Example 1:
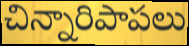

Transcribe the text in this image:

చిన్నారిపాపలు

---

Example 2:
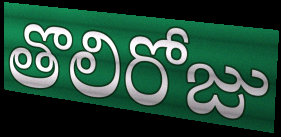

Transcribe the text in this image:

తొలిరోజు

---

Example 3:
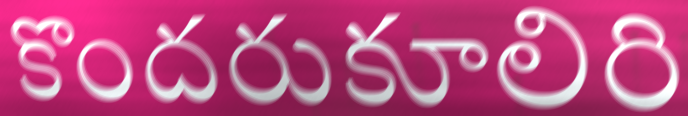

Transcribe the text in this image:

కొందరుకూలిరి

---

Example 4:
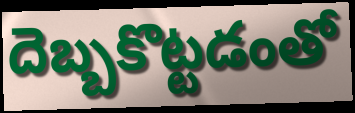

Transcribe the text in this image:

దెబ్బకొట్టడంతో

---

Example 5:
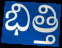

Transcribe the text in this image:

భిత్తి